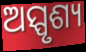
ଅସ୍ପୃଶ୍ୟ